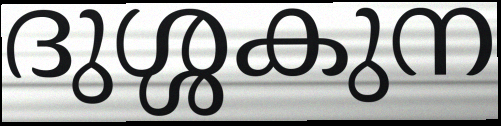
ദുശ്ശകുന